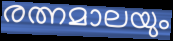
രത്നമാലയും